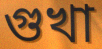
গুখা